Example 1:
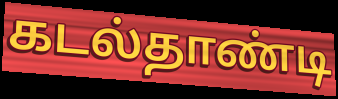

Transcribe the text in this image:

கடல்தாண்டி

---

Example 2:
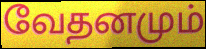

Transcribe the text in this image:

வேதனமும்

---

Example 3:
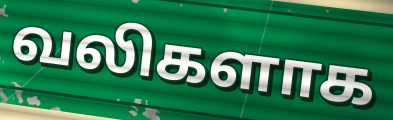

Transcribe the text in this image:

வலிகளாக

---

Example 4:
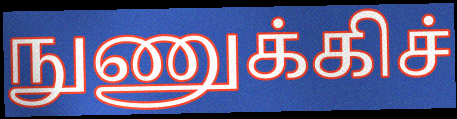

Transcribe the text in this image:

நுணுக்கிச்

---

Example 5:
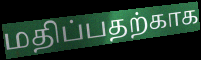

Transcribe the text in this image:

மதிப்பதற்காக